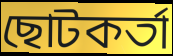
ছোটকর্তা